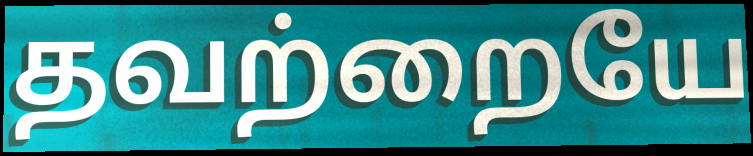
தவற்றையே